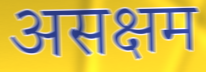
असक्षम